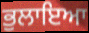
ਭੁਲਾਇਆ